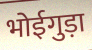
भोईगुड़ा